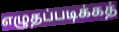
எழுதப்படிக்கத்